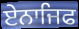
ਏਨਾਜਿਫ